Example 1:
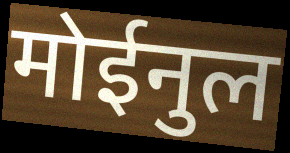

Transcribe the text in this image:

मोईनुल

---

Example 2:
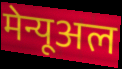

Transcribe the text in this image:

मेन्यूअल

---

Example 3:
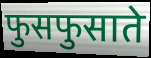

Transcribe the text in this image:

फुसफुसाते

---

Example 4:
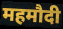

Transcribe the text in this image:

महमौदी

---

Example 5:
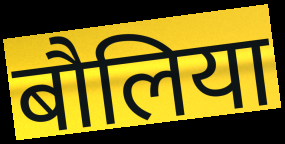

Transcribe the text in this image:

बौलिया